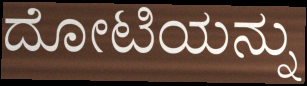
ದೋಟಿಯನ್ನು